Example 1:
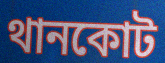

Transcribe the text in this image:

থানকোট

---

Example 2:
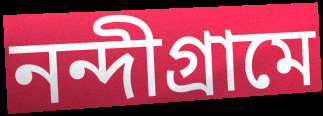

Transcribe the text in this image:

নন্দীগ্রামে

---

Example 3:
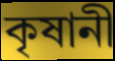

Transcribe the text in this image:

কৃষানী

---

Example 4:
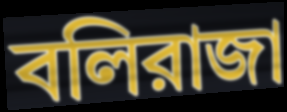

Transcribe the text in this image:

বলিরাজা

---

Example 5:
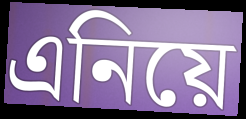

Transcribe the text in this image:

এনিয়ে